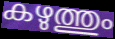
കഴുത്തും